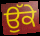
ਉੱਕੇ